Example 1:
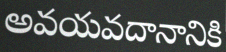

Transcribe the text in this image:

అవయవదానానికి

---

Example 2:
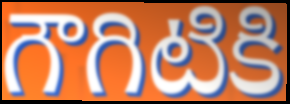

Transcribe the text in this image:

గౌగిటికి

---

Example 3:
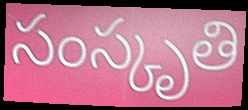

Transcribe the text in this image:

సంస్కృతి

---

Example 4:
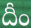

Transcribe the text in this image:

దీం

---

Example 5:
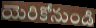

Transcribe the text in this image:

యెరికోనుండి